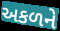
અકળને